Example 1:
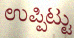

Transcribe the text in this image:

ಉಪ್ಪಿಟ್ಟು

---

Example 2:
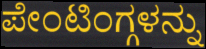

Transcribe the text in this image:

ಪೇಂಟಿಂಗ್ಗಳನ್ನು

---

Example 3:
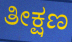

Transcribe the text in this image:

ತೀಕ್ಷಣ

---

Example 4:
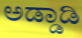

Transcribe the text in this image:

ಅಡ್ಡಾಡಿ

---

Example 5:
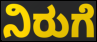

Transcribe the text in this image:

ನಿರುಗೆ